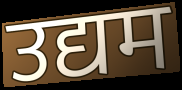
उद्यम